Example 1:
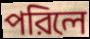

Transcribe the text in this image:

পরিলে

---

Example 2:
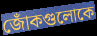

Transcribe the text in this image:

জোঁকগুলোকে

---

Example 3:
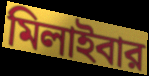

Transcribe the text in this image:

মিলাইবার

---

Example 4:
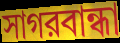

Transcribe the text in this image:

সাগরবান্ধা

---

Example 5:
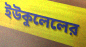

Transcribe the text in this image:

ইউকুলেলের